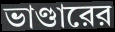
ভাণ্ডারের